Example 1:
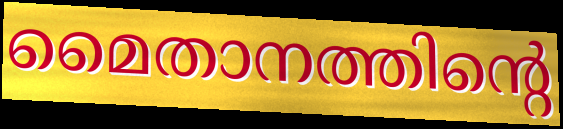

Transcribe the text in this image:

മൈതാനത്തിന്റെ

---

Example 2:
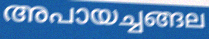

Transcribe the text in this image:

അപായച്ചങ്ങല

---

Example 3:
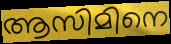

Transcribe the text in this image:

ആസിമിനെ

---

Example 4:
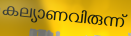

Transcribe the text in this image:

കല്യാണവിരുന്ന്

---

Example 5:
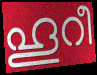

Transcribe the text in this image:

ഹൂറീ